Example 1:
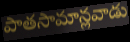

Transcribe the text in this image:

పాతసామాన్లవాడు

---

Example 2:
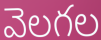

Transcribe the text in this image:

వెలగల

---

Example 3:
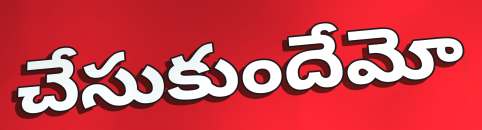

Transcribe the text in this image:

చేసుకుందేమో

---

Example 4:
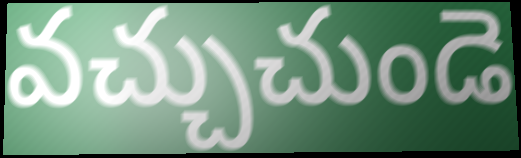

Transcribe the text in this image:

వచ్చుచుండె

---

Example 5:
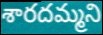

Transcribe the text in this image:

శారదమ్మని